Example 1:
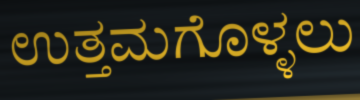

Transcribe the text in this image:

ಉತ್ತಮಗೊಳ್ಳಲು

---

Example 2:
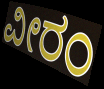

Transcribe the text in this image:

ವೀರಂ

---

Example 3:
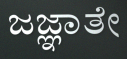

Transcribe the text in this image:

ಜಜ್ಞಾತೇ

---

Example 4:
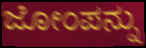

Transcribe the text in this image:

ಜೋಂಪನ್ನು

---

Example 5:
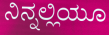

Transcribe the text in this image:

ನಿನ್ನಲ್ಲಿಯೂ